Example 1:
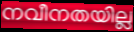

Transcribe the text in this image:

നവീനതയില്ല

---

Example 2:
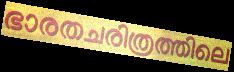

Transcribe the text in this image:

ഭാരതചരിത്രത്തിലെ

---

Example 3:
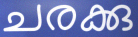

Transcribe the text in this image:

ചരക്കു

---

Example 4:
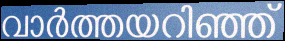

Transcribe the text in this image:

വാർത്തയറിഞ്ഞ്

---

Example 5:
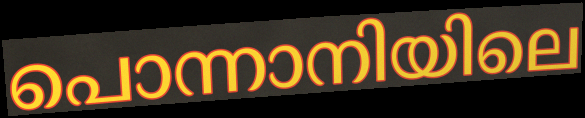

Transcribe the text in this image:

പൊന്നാനിയിലെ